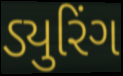
ડ્યુરિંગ